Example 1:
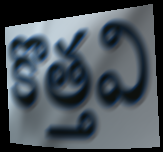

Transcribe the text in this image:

కొత్తవి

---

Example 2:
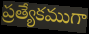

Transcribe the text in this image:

ప్రత్యేకముగా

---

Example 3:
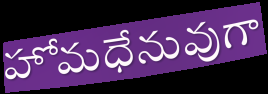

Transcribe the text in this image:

హోమధేనువుగా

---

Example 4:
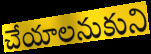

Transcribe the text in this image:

చేయాలనుకుని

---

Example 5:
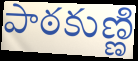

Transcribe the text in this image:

పాఠకుణ్ణి